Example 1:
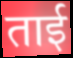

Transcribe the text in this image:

ताई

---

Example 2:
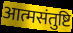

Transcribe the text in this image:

आत्मसंतुष्टि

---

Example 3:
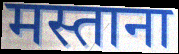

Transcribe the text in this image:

मस्ताना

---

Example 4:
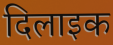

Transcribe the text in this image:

दिलाइक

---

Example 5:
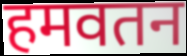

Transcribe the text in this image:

हमवतन